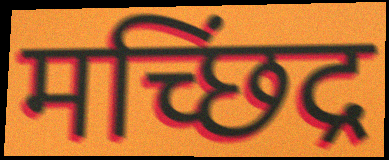
मच्छिंद्र